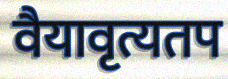
वैयावृत्यतप